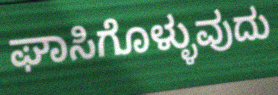
ಘಾಸಿಗೊಳ್ಳುವುದು